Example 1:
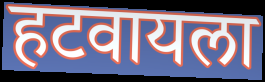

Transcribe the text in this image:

हटवायला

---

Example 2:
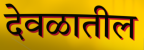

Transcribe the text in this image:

देवळातील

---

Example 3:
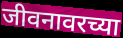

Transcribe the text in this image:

जीवनावरच्या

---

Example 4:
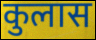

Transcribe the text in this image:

कुलास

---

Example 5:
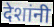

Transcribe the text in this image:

देशांनी